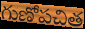
గుణోపచిత